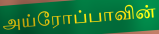
அய்ரோப்பாவின்